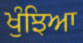
ਖੁੰਝਿਆ